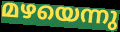
മഴയെന്നു